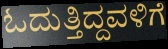
ಓದುತ್ತಿದ್ದವಳಿಗೆ